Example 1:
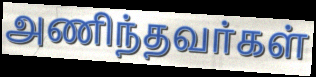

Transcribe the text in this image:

அணிந்தவர்கள்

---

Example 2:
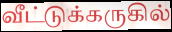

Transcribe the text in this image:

வீட்டுக்கருகில்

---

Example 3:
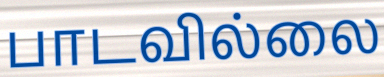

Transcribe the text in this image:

பாடவில்லை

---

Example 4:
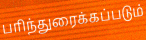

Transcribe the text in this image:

பரிந்துரைக்கப்படும்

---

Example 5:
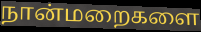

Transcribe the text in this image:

நான்மறைகளை